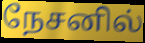
நேசனில்